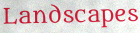
Landscapes